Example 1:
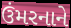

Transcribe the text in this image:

ઉંમરનાને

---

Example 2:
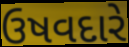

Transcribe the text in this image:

ઉષવદારે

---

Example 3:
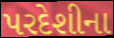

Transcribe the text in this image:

પરદેશીના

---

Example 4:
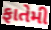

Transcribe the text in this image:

ફાતેમી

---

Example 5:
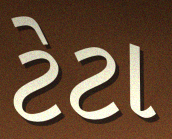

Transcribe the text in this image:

ટેટા